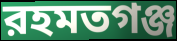
রহমতগঞ্জ